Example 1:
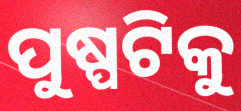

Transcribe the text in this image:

ପୁଷ୍ପଟିକୁ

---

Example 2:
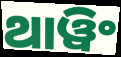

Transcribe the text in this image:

ଥାୱିଂ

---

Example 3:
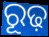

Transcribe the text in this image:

ରୂଢ଼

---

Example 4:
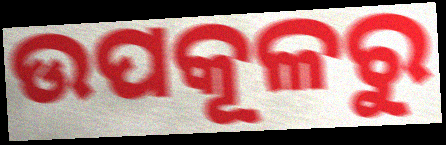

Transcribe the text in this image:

ଉପକୂଳରୁ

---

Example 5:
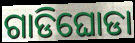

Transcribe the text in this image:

ଗାଡିଘୋଡା